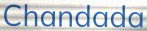
Chandada